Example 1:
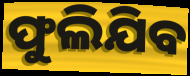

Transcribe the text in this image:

ଫୁଲିଯିବ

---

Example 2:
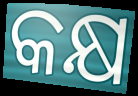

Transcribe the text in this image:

କକ୍ଷ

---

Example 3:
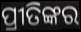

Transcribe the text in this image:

ପ୍ରୀତିଙ୍କର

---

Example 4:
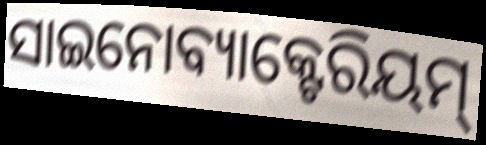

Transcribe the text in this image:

ସାଇନୋବ୍ୟାକ୍ଟେରିୟମ୍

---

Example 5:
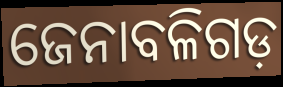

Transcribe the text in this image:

ଜେନାବଳିଗଡ଼